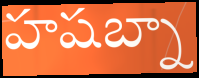
హషబ్నా